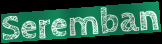
Seremban